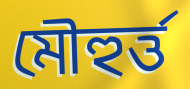
মৌহুৰ্ত্ত